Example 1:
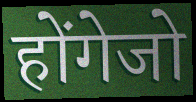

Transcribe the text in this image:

होंगेजो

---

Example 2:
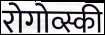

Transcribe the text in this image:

रोगोव्स्की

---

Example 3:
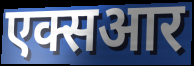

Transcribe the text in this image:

एक्सआर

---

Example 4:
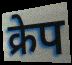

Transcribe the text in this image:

क्रेप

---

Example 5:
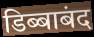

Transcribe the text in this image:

डिब्बाबंद